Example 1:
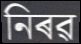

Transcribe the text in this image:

নিৰৱ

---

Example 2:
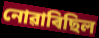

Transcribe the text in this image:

নোৱাৰিছিল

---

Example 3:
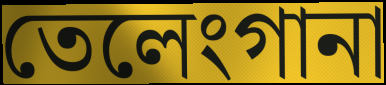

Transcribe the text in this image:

তেলেংগানা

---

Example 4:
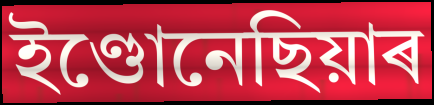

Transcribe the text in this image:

ইণ্ডোনেছিয়াৰ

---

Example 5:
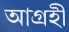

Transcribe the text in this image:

আগ্ৰহী